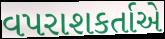
વપરાશકર્તાએ